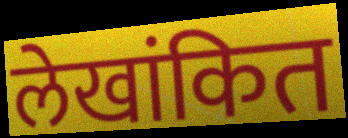
लेखांकित